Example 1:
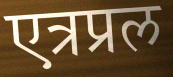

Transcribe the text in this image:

एत्रप्रल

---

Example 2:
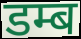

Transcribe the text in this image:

डम्ब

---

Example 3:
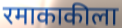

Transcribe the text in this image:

रमाकाकीला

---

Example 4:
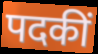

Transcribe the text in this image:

पदकीं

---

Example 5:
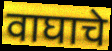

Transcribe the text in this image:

वाघाचे